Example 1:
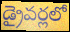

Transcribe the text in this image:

డ్రైవర్లలో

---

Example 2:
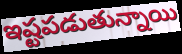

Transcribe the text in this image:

ఇష్టపడుతున్నాయి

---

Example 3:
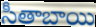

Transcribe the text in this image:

సీతాబాయి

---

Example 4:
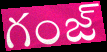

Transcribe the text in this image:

గంజ్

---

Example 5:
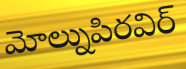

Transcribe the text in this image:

మోల్నుపిరవిర్